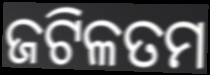
ଜଟିଳତମ